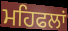
ਮਹਿਫਲਾਂ